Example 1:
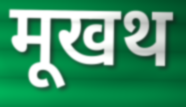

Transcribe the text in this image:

मूखथ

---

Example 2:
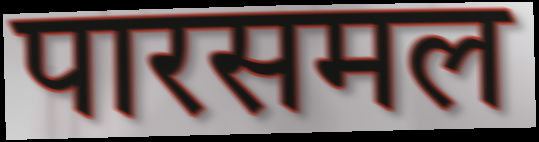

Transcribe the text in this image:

पारसमल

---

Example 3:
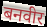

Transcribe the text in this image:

बनवीर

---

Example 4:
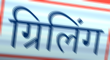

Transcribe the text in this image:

ग्रिलिंग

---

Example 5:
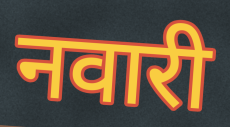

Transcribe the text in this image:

नवारी